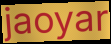
jaoyar